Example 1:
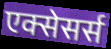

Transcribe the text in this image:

एक्सेसर्स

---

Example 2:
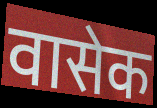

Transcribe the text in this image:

वासेक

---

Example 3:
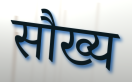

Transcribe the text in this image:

सौख्य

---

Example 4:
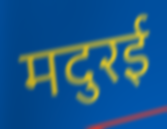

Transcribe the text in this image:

मदुरई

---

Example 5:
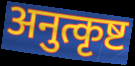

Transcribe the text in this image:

अनुत्कृष्ट